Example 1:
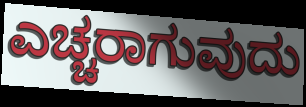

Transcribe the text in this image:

ಎಚ್ಚರಾಗುವುದು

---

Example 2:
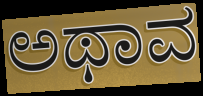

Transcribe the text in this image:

ಅಥಾವ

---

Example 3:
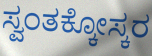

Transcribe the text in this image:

ಸ್ವಂತಕ್ಕೋಸ್ಕರ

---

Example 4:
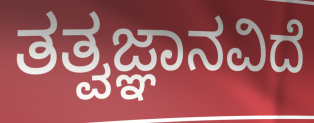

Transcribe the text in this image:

ತತ್ವಜ್ಞಾನವಿದೆ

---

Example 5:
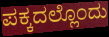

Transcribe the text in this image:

ಪಕ್ಕದಲ್ಲೊಂದು